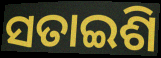
ସତାଇଶି